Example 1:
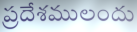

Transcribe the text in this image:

ప్రదేశములందు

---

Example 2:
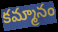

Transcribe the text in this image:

కమ్మానం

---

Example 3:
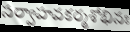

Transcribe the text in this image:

సర్వాహవకర్మశోభినః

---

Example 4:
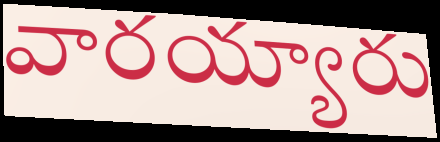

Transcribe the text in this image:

వారయ్యారు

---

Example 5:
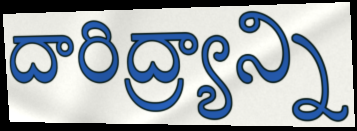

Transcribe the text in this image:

దారిద్ర్యాన్ని